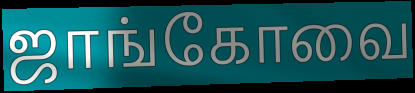
ஜாங்கோவை